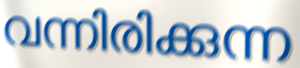
വന്നിരിക്കുന്ന